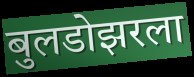
बुलडोझरला